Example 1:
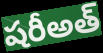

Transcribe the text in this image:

షరీఅత్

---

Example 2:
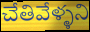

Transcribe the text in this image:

చేతివేళ్ళని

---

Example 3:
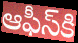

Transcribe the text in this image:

ఆఫీస్‌కి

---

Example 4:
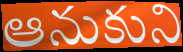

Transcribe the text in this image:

ఆనుకుని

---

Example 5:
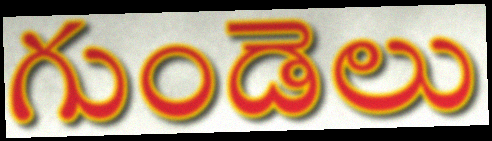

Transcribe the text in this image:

గుండెలు